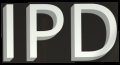
IPD